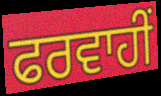
ਫਰਵਾਹੀਂ